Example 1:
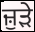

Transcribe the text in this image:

ਜ਼ੁੜੇ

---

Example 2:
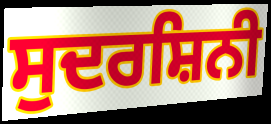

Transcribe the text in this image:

ਸੁਦਰਸ਼ਿਨੀ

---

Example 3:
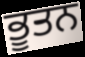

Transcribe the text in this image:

ਭੂਤਨ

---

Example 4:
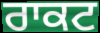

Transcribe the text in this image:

ਰਾਕਟ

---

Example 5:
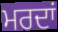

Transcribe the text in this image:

ਮਰਦਾਂ